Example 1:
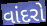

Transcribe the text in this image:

વાંદરો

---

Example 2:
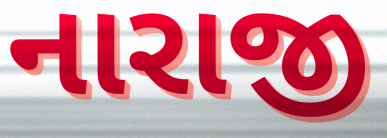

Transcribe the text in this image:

નારાજી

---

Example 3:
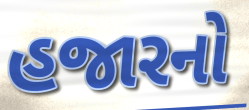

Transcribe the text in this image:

હજારનો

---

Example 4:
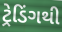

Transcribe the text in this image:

ટ્રેડિંગથી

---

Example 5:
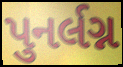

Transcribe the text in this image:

પુનર્લગ્ન